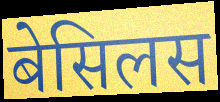
बेसिलस